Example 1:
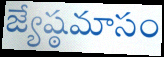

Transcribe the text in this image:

జ్యేష్ఠమాసం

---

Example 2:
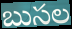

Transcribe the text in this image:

బుసల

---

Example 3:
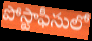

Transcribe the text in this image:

పోస్టాఫీసులో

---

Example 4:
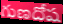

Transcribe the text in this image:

గుణదోష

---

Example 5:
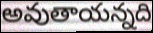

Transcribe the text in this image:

అవుతాయన్నది